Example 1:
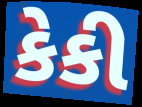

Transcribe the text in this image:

કેકી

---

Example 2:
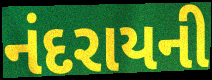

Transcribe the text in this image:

નંદરાયની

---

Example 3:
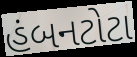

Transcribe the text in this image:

હંબનટોટા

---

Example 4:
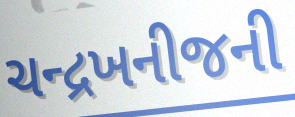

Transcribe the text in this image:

ચન્દ્રખનીજની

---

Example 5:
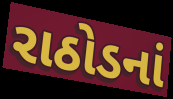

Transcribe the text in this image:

રાઠોડનાં